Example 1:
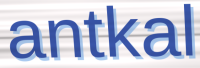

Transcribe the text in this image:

antkal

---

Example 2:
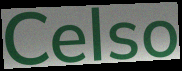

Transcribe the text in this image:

Celso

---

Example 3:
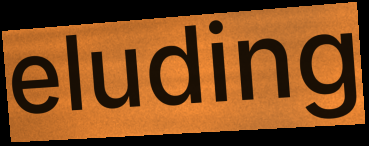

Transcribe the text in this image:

eluding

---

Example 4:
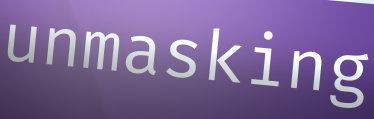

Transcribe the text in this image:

unmasking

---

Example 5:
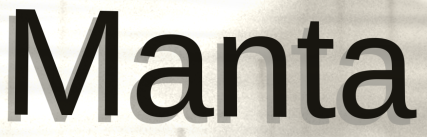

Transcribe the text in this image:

Manta